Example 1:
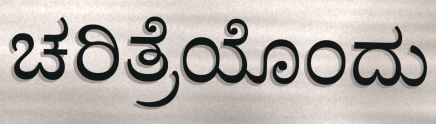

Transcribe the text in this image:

ಚರಿತ್ರೆಯೊಂದು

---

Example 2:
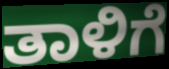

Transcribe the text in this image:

ತಾಳಿಗೆ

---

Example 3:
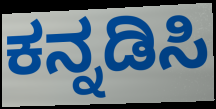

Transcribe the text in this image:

ಕನ್ನಡಿಸಿ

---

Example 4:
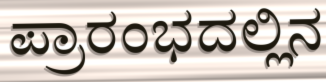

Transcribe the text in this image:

ಪ್ರಾರಂಭದಲ್ಲಿನ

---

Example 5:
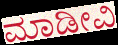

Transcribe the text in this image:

ಮಾಡೀವಿ